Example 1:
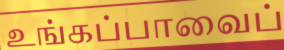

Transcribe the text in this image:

உங்கப்பாவைப்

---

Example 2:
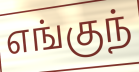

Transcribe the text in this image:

எங்குந்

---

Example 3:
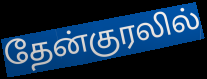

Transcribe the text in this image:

தேன்குரலில்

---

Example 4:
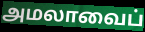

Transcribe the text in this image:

அமலாவைப்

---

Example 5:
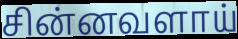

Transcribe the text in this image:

சின்னவளாய்